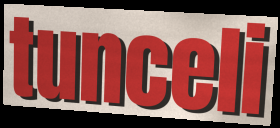
tunceli